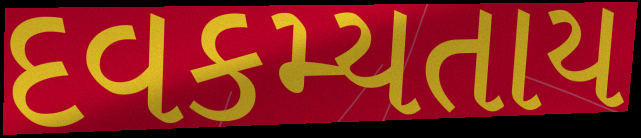
દવકમ્યતાય